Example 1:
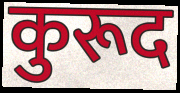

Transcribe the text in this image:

कुरूद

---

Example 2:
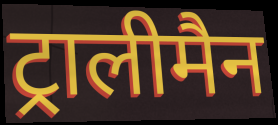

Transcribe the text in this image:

ट्रालीमैन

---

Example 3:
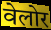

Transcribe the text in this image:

वेलोर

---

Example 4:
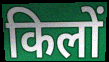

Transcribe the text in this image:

किलों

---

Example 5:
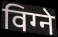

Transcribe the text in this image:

विग्ने